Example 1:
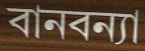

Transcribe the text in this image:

বানবন্যা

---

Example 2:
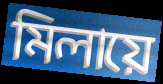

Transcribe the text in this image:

মিলায়ে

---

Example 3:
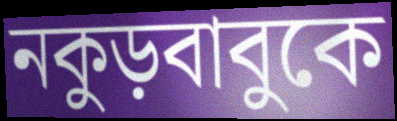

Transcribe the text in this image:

নকুড়বাবুকে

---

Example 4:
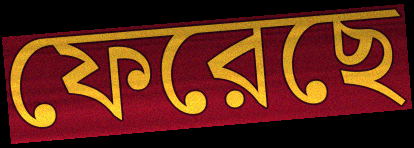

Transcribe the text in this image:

ফেরেছে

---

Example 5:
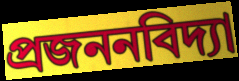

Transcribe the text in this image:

প্রজননবিদ্যা